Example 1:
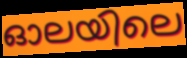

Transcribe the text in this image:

ഓലയിലെ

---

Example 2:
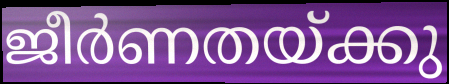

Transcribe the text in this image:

ജീർണതയ്ക്കു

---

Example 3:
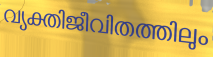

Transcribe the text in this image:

വ്യക്തിജീവിതത്തിലും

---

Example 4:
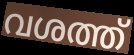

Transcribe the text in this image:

വശത്ത്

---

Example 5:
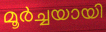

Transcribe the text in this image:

മൂർച്ചയായി